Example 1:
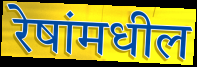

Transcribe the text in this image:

रेषांमधील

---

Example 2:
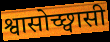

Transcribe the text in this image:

श्वासोच्छ्वासी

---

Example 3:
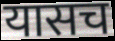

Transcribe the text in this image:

यासच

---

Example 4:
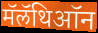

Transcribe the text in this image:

मॅलॅथिऑन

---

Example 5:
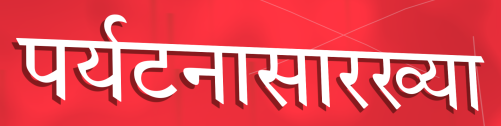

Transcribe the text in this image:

पर्यटनासारख्या